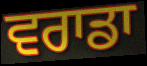
ਵਰਾਡਾ